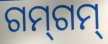
ଗମ୍‍ଗମ୍